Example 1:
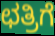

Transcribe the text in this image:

ಛತ್ರಿಗೆ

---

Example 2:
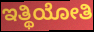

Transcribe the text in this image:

ಇತ್ಥಿಯೋತಿ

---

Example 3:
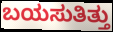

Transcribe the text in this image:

ಬಯಸುತಿತ್ತು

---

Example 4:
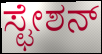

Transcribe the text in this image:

ಸ್ಟೇಶನ್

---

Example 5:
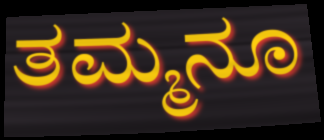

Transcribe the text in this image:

ತಮ್ಮನೂ